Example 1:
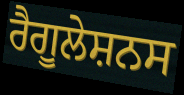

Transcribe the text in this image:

ਰੈਗੂਲੇਸ਼ਨਸ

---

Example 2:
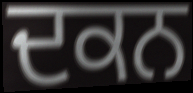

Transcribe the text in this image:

ਦਕਨ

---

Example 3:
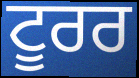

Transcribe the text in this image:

ਟੂਰਰ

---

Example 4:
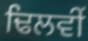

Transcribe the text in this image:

ਢਿਲਵੀਂ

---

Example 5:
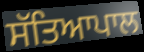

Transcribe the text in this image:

ਸੱਤਿਆਪਾਲ